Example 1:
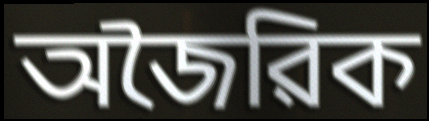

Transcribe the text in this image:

অজৈৱিক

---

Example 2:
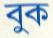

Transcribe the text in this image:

বুক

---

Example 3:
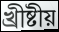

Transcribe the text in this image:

খ্ৰীষ্টীয়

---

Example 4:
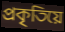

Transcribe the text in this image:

প্ৰকৃতিয়ে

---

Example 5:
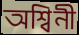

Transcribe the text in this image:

অশ্বিনী